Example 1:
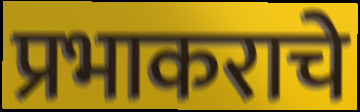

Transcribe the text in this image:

प्रभाकराचे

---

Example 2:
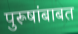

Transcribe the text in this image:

पुरूषांबाबत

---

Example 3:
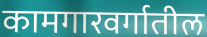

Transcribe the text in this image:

कामगारवर्गातील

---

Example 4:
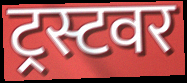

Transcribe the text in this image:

ट्रस्टवर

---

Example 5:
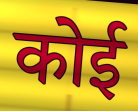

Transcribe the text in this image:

कोई